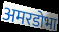
अमरडोभा